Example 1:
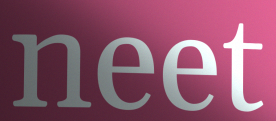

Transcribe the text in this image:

neet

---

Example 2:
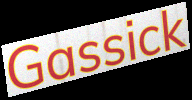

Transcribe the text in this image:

Gassick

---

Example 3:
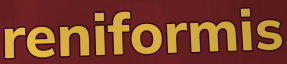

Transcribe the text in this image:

reniformis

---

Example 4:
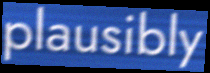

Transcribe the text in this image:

plausibly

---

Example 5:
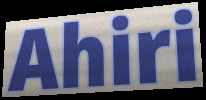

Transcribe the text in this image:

Ahiri